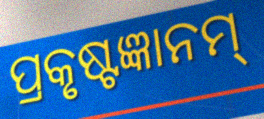
ପ୍ରକୃଷ୍ଟଜ୍ଞାନମ୍